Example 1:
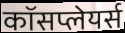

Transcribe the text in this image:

कॉसप्लेयर्स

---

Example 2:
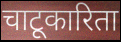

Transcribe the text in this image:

चाटूकारिता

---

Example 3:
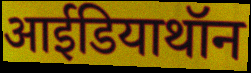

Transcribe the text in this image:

आईडियाथॉन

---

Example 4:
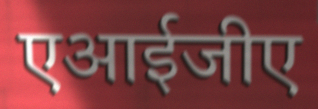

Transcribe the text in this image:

एआईजीए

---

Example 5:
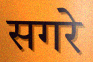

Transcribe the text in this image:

सगरे